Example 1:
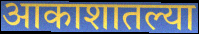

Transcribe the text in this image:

आकाशातल्या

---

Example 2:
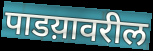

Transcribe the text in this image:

पाडय़ावरील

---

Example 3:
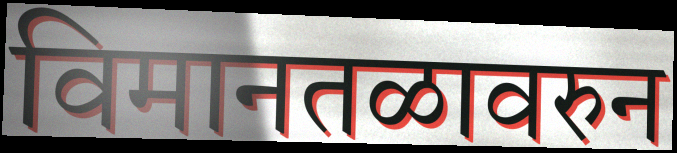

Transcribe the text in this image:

विमानतळावरुन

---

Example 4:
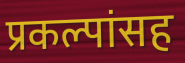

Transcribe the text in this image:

प्रकल्पांसह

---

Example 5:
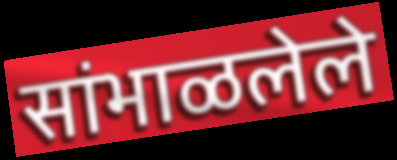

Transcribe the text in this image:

सांभाळलेले